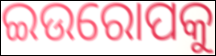
ଇଉରୋପକୁ